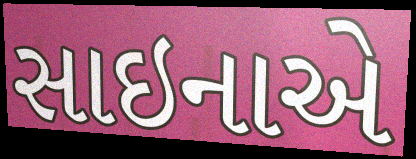
સાઇનાએ